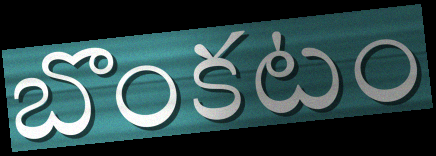
బొంకటం